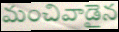
మంచివాడైన